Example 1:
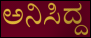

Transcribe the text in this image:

ಅನಿಸಿದ್ದ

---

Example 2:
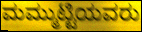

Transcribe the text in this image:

ಮಮ್ಮುಟ್ಟಿಯವರು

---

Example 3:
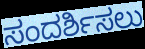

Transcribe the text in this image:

ಸಂದರ್ಶಿಸಲು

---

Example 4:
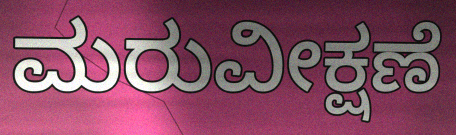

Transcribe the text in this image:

ಮರುವೀಕ್ಷಣೆ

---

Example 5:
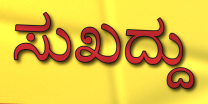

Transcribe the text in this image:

ಸುಖದ್ದು